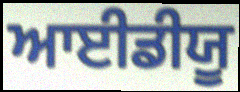
ਆਈਡੀਯੂ